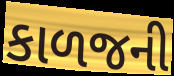
કાળજની